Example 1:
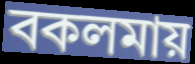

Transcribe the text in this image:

বকলমায়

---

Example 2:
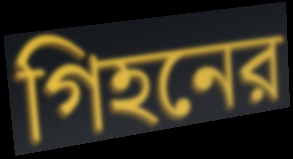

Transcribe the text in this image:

গিহনের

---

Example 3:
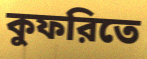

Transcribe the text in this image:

কুফরিতে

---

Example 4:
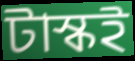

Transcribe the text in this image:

টাস্কই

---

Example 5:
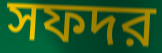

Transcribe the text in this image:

সফদর